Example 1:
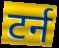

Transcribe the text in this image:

टर्न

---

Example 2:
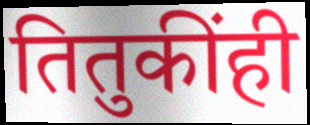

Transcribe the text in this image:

तितुकींही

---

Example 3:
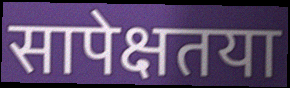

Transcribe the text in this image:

सापेक्षतया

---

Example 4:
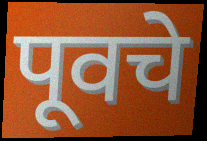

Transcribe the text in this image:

पूवचे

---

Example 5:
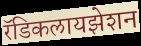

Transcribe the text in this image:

रॅडिकलायझेशन